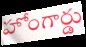
హోంగార్డు